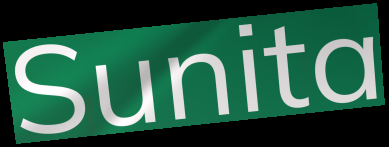
Sunita